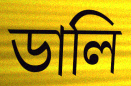
ডালি